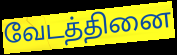
வேடத்தினை